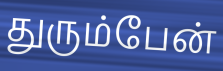
துரும்பேன்